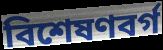
বিশেষণবর্গ